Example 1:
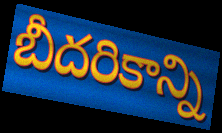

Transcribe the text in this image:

బీదరికాన్ని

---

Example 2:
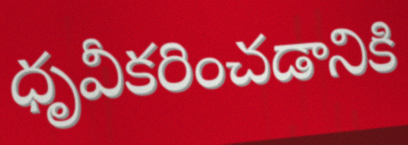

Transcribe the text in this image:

ధృవీకరించడానికి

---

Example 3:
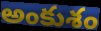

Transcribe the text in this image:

అంకుశం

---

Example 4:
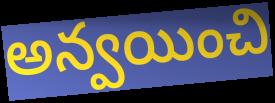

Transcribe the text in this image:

అన్వయించి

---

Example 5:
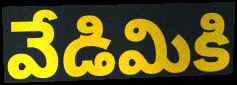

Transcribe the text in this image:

వేడిమికి